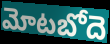
మోటబోదె